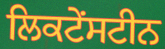
ਲਿਕਟੇਂਸਟੀਨ